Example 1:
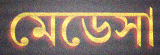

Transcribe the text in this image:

মেডেসা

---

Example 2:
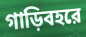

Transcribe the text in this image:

গাড়িবহরে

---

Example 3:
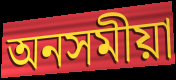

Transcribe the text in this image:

অনসমীয়া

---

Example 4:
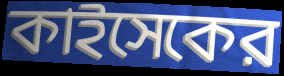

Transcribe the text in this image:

কাইসেকের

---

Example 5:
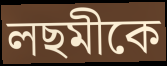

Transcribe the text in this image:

লছমীকে